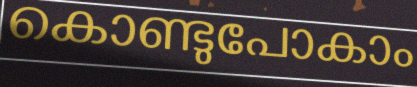
കൊണ്ടുപോകാം